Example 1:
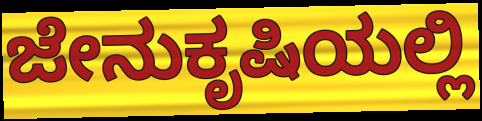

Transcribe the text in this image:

ಜೇನುಕೃಷಿಯಲ್ಲಿ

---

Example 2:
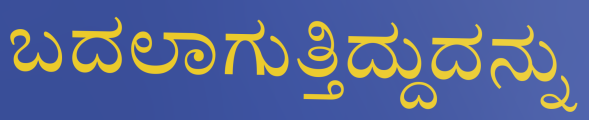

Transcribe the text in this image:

ಬದಲಾಗುತ್ತಿದ್ದುದನ್ನು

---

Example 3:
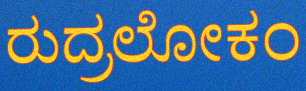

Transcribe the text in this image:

ರುದ್ರಲೋಕಂ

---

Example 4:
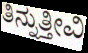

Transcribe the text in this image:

ತಿನ್ನುತ್ತೀವಿ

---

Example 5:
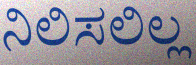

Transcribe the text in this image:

ನಿಲಿಸಲಿಲ್ಲ